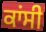
ਕਾਂਸੀ